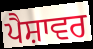
ਪੈਸ਼ਾਵਰ